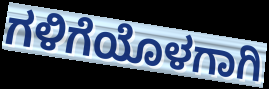
ಗಳಿಗೆಯೊಳಗಾಗಿ